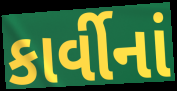
કાર્વીનાં